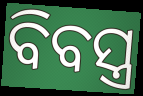
ବିବସ୍ତ୍ର